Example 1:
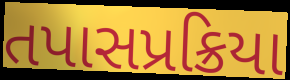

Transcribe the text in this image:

તપાસપ્રક્રિયા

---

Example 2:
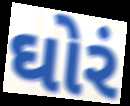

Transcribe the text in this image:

ઘોરં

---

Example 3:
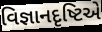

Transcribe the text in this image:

વિજ્ઞાનદૃષ્ટિએ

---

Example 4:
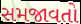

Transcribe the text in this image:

સમજાવતો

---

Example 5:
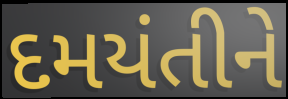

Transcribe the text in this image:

દમયંતીને